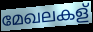
മേഖലകള്